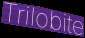
Trilobite